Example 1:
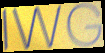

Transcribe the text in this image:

IWG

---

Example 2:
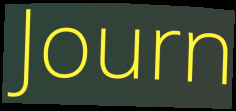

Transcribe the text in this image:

Journ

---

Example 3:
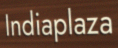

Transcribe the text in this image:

Indiaplaza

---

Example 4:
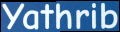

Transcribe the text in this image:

Yathrib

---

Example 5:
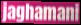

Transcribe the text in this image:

jaghamani